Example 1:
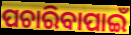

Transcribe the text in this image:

ପଚାରିବାପାଇଁ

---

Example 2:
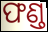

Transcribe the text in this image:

ଫଣ୍ଡ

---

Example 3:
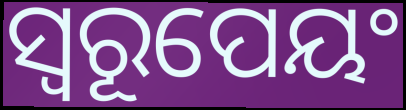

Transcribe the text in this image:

ସ୍ୱରୂପେୟଂ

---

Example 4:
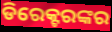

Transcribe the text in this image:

ଡିରେକ୍ଟରଙ୍କର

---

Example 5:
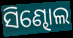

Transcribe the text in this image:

ସିଣ୍ଢୋଲ